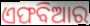
ଏଫବିଆର